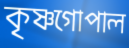
কৃষ্ণগোপাল